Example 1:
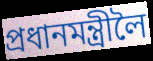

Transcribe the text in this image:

প্ৰধানমন্ত্ৰীলৈ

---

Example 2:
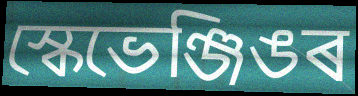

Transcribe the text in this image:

স্কেভেঞ্জিঙৰ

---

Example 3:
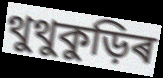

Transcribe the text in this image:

থুথুকুড়িৰ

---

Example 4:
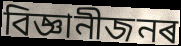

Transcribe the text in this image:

বিজ্ঞানীজনৰ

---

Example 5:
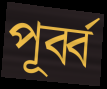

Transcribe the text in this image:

পূৰ্ব্ব